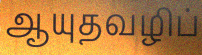
ஆயுதவழிப்